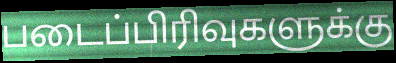
படைப்பிரிவுகளுக்கு